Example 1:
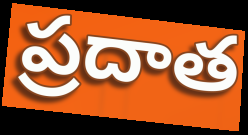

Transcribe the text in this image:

ప్రదాత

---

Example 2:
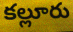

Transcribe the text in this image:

కల్లూరు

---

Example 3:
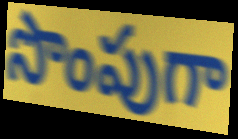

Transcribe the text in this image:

సొంపుగా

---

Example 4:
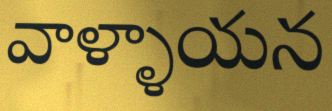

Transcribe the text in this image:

వాళ్ళాయన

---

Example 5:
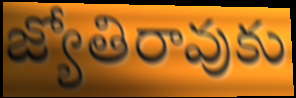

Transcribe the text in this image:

జ్యోతిరావుకు